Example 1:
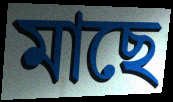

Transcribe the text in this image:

মাছে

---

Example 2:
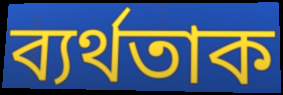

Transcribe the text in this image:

ব্যৰ্থতাক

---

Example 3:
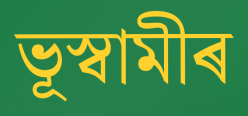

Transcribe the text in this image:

ভূস্বামীৰ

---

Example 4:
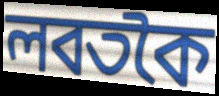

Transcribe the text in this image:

লবতকৈ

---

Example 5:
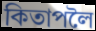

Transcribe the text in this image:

কিতাপলৈ